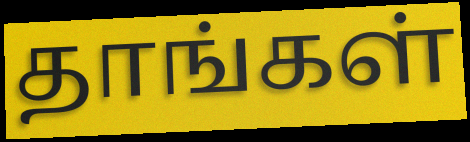
தாங்கள்